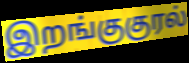
இறங்குகுரல்